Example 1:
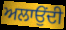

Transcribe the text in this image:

ਅਲਾਉਂਦੀ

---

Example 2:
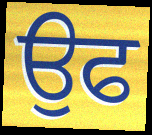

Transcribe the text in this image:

ਉਫ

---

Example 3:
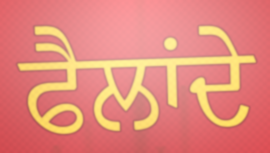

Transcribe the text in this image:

ਫੈਲਾਂਦੇ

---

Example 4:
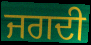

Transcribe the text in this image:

ਜਗਦੀ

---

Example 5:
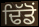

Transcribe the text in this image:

ਢਿੱਡੋਂ